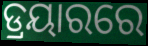
ଡ୍ରୟାରରେ